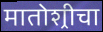
मातोश्रीचा